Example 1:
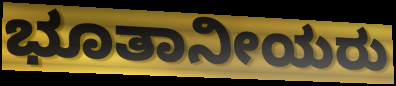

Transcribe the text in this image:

ಭೂತಾನೀಯರು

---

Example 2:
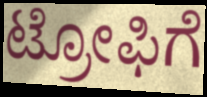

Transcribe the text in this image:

ಟ್ರೋಫಿಗೆ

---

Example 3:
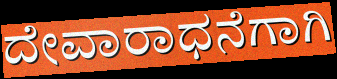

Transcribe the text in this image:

ದೇವಾರಾಧನೆಗಾಗಿ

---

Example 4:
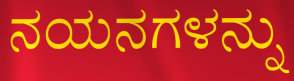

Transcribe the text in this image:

ನಯನಗಳನ್ನು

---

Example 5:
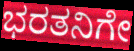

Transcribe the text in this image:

ಭರತನಿಗೇ